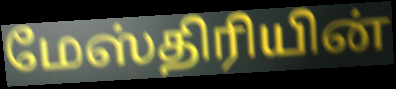
மேஸ்திரியின்